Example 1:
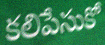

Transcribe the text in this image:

కలిపేసుకో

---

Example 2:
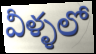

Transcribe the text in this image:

వీళ్ళలో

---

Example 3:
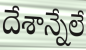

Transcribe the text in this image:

దేశాన్నేలే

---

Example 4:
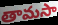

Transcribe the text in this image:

తామసా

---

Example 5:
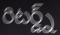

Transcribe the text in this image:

రిటర్డ్న్